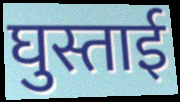
घुस्ताई